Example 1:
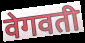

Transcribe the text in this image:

वेगवती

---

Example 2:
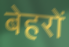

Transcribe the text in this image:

बेहरों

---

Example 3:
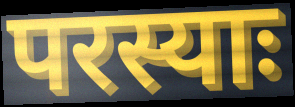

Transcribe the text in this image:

परस्याः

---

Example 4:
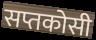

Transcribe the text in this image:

सप्तकोसी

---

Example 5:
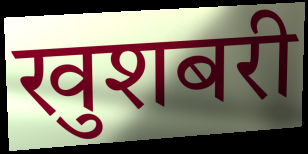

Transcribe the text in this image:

खुशबरी